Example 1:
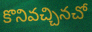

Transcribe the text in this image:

కొనివచ్చినచో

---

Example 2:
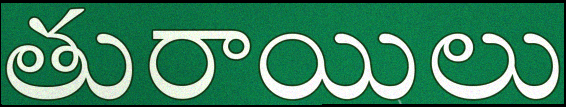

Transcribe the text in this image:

తురాయిలు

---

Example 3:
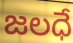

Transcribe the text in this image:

జలధే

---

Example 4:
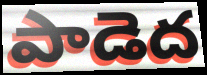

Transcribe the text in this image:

పాడెద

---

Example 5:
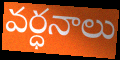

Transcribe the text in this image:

వర్ధనాలు